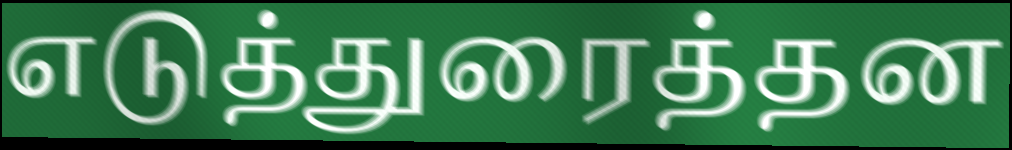
எடுத்துரைத்தன